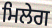
ਮਿਲੇਗ